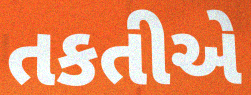
તકતીએ